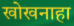
खोखनाहा